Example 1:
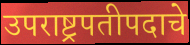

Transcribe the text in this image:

उपराष्ट्रपतीपदाचे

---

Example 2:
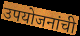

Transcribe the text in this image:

उपयोजनांची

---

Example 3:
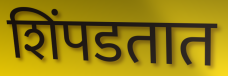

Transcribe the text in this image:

शिंपडतात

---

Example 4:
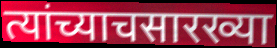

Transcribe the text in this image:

त्यांच्याचसारख्या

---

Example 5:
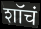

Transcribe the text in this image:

शॉचं